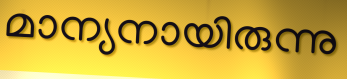
മാന്യനായിരുന്നു